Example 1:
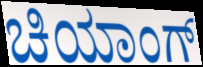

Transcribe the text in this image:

ಚಿಯಾಂಗ್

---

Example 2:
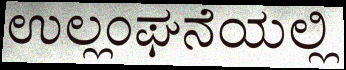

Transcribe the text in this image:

ಉಲ್ಲಂಘನೆಯಲ್ಲಿ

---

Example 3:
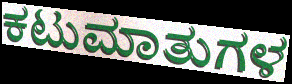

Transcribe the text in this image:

ಕಟುಮಾತುಗಳ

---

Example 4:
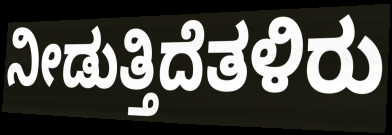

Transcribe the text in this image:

ನೀಡುತ್ತಿದೆತಳಿರು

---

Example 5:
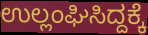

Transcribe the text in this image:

ಉಲ್ಲಂಘಿಸಿದ್ದಕ್ಕೆ